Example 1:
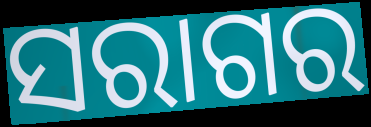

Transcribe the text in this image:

ସରାଗର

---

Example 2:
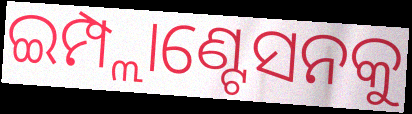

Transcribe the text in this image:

ଇମ୍ପ୍ଲାଣ୍ଟେସନକୁ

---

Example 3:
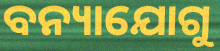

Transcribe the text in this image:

ବନ୍ୟାଯୋଗୁ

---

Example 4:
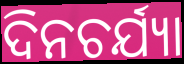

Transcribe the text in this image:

ଦିନଚର୍ଯ୍ଯା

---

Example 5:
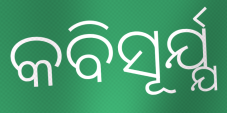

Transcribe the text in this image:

କବିସୂର୍ଯ୍ଯ